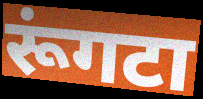
रूंगटा